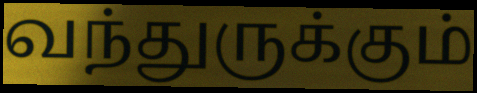
வந்துருக்கும்